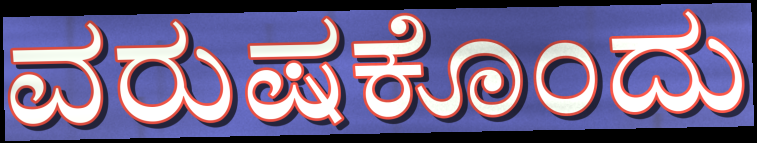
ವರುಷಕೊಂದು